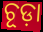
ଚୂଡ଼ା